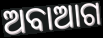
ଅବାଆଗ